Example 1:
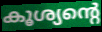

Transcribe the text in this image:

കൂശ്യന്റെ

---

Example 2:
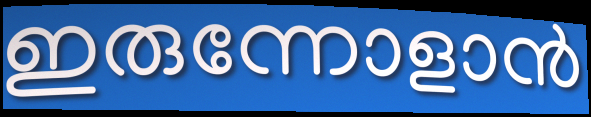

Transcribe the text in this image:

ഇരുന്നോളാൻ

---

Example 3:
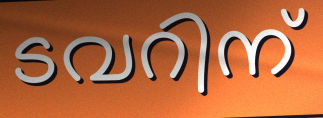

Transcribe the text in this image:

ടവറിന്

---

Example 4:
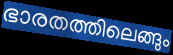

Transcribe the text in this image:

ഭാരതത്തിലെങ്ങും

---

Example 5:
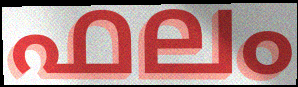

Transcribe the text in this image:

ഫലം